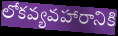
లోకవ్యవహారానికి